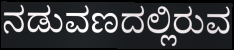
ನಡುವಣದಲ್ಲಿರುವ